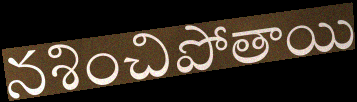
నశించిపోతాయి